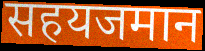
सहयजमान